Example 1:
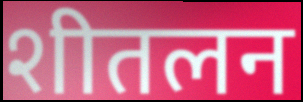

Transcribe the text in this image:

शीतलन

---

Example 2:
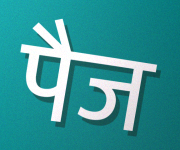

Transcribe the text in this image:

पैज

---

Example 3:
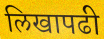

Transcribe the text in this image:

लिखापढी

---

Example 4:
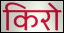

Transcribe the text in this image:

किरो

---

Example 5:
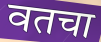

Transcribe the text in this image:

वतचा